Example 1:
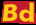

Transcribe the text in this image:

Bd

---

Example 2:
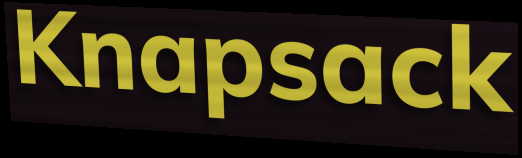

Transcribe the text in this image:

Knapsack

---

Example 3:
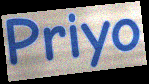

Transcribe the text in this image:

Priyo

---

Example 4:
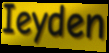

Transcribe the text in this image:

Ieyden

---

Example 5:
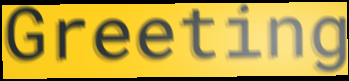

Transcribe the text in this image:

Greeting